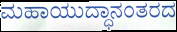
ಮಹಾಯುದ್ಧಾನಂತರದ